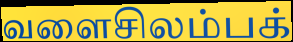
வளைசிலம்பக்